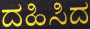
ದಹಿಸಿದ